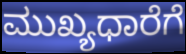
ಮುಖ್ಯಧಾರೆಗೆ